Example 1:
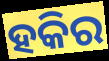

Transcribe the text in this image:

ହକିର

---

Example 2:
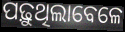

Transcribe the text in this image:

ପଢ଼ୁଥିଲାବେଳେ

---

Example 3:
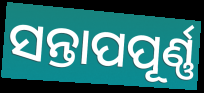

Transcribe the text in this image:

ସନ୍ତାପପୂର୍ଣ୍ଣ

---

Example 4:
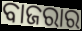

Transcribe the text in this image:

ବାଜରାର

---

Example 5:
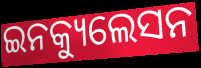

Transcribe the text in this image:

ଇନକ୍ୟୁଲେସନ